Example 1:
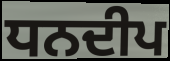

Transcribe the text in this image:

ਧਨਦੀਪ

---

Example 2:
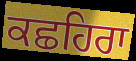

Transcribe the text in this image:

ਕਛਹਿਰਾ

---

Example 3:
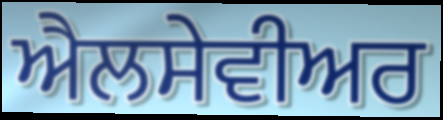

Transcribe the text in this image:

ਐਲਸੇਵੀਅਰ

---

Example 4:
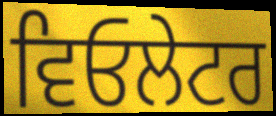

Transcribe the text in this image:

ਵਿਓਲੇਟਰ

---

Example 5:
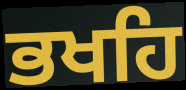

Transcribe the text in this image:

ਭਖਹਿ